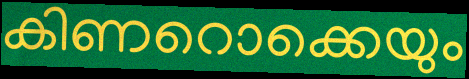
കിണറൊക്കെയും